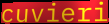
cuvieri